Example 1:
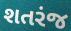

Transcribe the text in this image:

શતરંજ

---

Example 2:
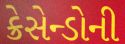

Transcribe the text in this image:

ક્રેસેન્ડોની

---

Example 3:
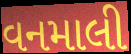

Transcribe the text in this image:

વનમાલી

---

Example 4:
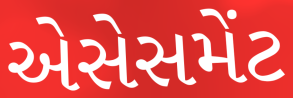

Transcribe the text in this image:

એસેસમેંટ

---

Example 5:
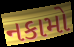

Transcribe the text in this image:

નકામો